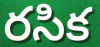
రసిక